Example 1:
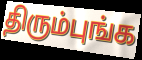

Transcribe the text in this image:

திரும்புங்க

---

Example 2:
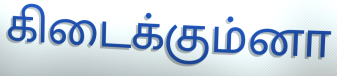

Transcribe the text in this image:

கிடைக்கும்னா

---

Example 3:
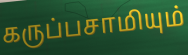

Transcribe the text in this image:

கருப்பசாமியும்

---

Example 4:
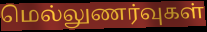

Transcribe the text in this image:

மெல்லுணர்வுகள்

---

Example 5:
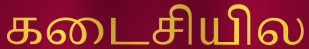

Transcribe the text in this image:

கடைசியில